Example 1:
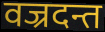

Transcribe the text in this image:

वज्रदन्त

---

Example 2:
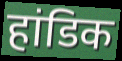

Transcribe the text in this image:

हांडिक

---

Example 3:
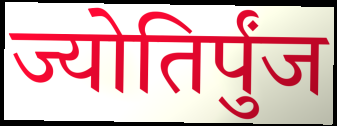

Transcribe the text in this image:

ज्योतिर्पुंज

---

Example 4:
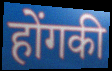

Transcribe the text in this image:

होंगकी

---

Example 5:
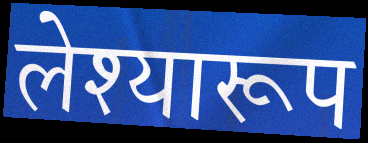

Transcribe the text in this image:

लेश्यारूप